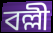
বল্লী